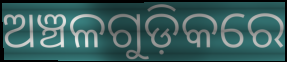
ଅଞ୍ଚଳଗୁଡ଼ିକରେ